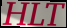
HLT